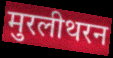
मुरलीथरन